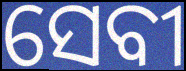
ସେବୀ